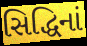
સિદ્ધિનાં